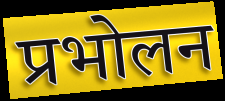
प्रभोलन